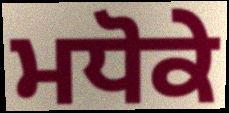
ਮਧੋਕੇ